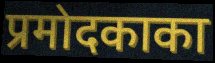
प्रमोदकाका